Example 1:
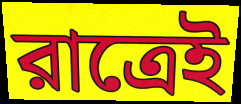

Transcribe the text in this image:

রাত্রেই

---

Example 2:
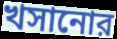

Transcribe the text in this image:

খসানোর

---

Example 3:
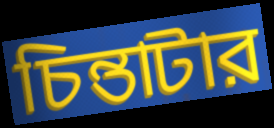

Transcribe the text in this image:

চিন্তাটার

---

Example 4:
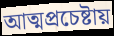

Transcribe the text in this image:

আত্মপ্রচেষ্টায়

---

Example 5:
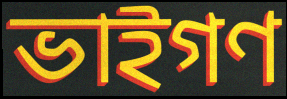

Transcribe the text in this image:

ভাইগণ